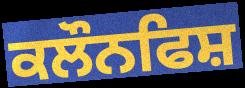
ਕਲੌਨਫਿਸ਼